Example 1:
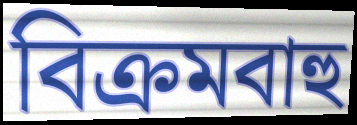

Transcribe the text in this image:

বিক্রমবাহু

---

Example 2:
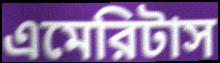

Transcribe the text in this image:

এমেরিটাস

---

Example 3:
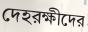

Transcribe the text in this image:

দেহরক্ষীদের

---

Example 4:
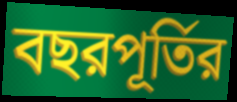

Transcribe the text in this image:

বছরপূর্তির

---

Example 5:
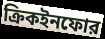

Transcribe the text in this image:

ক্রিকইনফোর